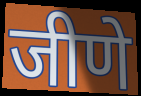
जीणे